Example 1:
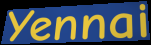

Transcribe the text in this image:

Yennai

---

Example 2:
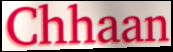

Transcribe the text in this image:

Chhaan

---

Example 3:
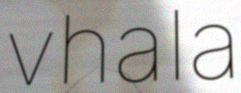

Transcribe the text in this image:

vhala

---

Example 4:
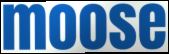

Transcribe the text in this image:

moose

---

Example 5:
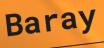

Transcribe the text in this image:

Baray